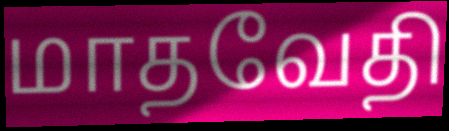
மாதவேதி